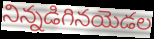
నిన్నడిగినయెడల